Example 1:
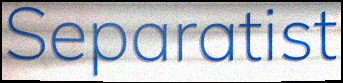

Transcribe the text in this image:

Separatist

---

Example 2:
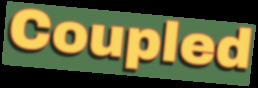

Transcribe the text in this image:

Coupled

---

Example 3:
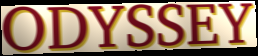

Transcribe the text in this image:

ODYSSEY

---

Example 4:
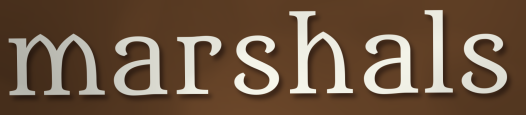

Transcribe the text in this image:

marshals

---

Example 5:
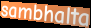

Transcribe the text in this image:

sambhalta